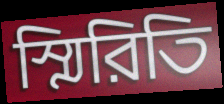
স্মিরিতি